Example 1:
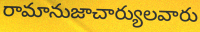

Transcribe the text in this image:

రామానుజాచార్యులవారు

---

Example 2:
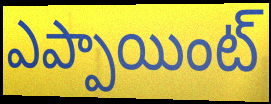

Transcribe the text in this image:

ఎప్పాయింట్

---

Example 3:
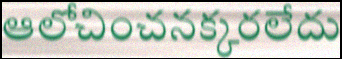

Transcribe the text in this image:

ఆలోచించనక్కరలేదు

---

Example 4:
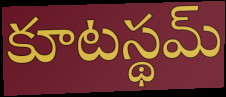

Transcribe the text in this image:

కూటస్థమ్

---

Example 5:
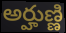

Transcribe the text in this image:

అర్హుణ్ణి